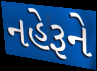
નહેરૂને